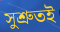
সুশ্ৰুতই